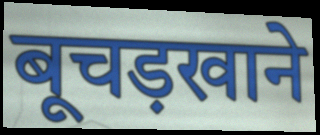
बूचड़खाने